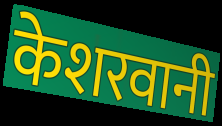
केशरवानी